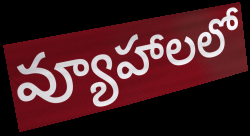
వ్యూహాలలో